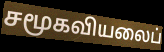
சமூகவியலைப்